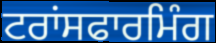
ਟਰਾਂਸਫਾਰਮਿੰਗ